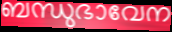
ബന്ധുഭാവേന